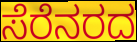
ಸೆರೆನರದ